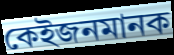
কেইজনমানক